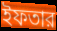
ইফতার